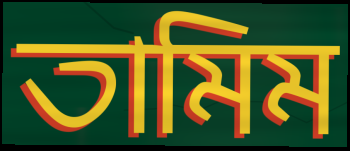
তামিম